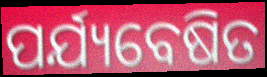
ପର୍ଯ୍ୟବେଷିତ